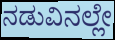
ನಡುವಿನಲ್ಲೇ